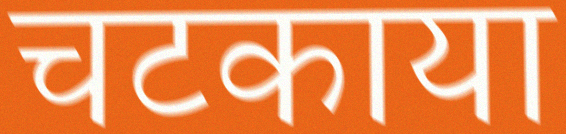
चटकाया